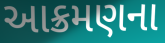
આક્રમણના